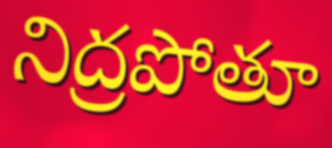
నిద్రపోతూ